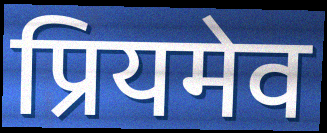
प्रियमेव